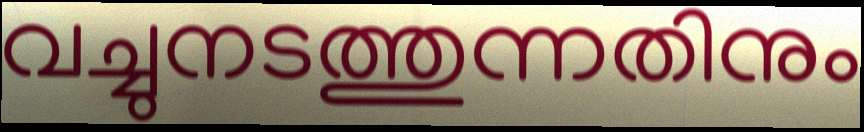
വച്ചുനടത്തുന്നതിനും